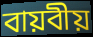
বায়বীয়